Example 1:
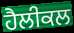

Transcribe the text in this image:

ਹੈਲੀਕਲ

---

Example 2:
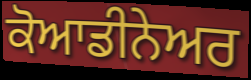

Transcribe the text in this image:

ਕੋਆਡੀਨੇਅਰ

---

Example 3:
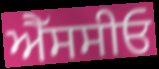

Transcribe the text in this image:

ਐੱਸਸੀਓ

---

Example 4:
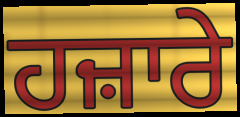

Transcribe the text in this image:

ਹਜ਼ਾਰੇ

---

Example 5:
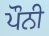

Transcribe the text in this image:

ਪੌਨੀ